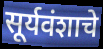
सूर्यवंशाचे